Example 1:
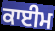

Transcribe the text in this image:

ਕਾਈਮ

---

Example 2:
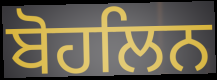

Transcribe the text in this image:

ਬੋਹਲਿਨ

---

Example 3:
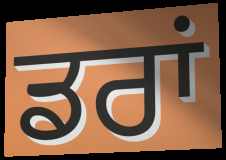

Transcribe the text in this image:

ਡਰਾਂ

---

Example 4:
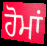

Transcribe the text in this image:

ਹੋਮਾਂ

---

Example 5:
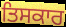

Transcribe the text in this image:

ਤਿਸਕਾਰ